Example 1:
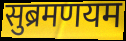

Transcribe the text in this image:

सुब्रमणयम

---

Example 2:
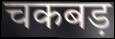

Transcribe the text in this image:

चकबड़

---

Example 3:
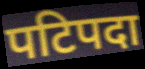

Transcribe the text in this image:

पटिपदा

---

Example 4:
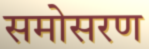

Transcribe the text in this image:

समोसरण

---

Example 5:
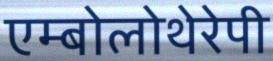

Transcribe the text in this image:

एम्बोलोथेरेपी